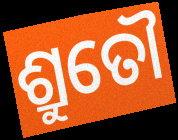
ଶ୍ରୁତୌ